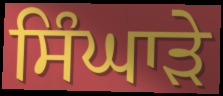
ਸਿੰਘਾੜੇ